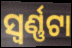
ସ୍ୱର୍ଣ୍ଣଟା